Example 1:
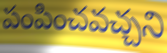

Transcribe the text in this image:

పంపించవచ్చని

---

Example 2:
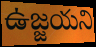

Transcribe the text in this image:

ఉజ్జయని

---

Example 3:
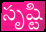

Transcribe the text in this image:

సృష్టి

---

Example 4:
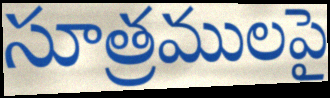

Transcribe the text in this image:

సూత్రములపై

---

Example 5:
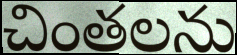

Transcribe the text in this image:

చింతలను